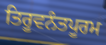
ਤਿਰੂਵਨੰਤਪੂਰਮ